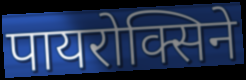
पायरोक्सिने